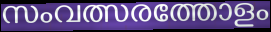
സംവത്സരത്തോളം